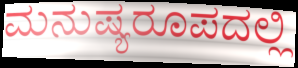
ಮನುಷ್ಯರೂಪದಲ್ಲಿ